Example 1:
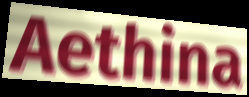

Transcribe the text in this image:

Aethina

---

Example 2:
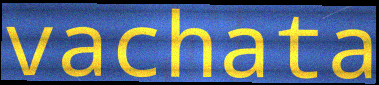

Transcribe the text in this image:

vachata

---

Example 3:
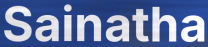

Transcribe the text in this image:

Sainatha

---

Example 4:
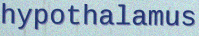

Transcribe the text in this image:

hypothalamus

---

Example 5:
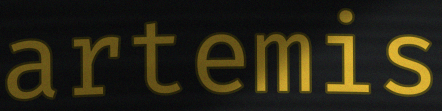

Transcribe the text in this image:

artemis